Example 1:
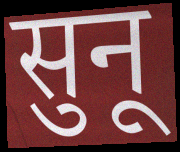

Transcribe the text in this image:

सुनू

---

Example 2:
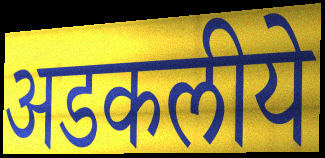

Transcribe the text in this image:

अडकलीये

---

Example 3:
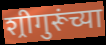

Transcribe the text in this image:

श्रीगुरूंच्या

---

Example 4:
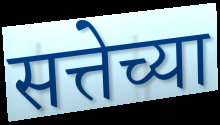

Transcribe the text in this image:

सत्तेच्या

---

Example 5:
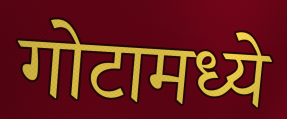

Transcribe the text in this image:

गोटामध्ये